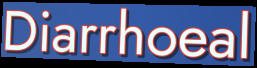
Diarrhoeal